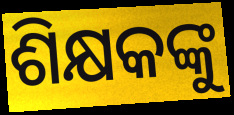
ଶିକ୍ଷକଙ୍କୁ